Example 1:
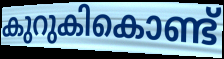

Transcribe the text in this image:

കുറുകികൊണ്ട്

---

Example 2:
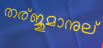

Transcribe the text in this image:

തര്ജുമാനുല്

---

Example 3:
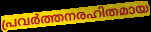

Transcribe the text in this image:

പ്രവർത്തനരഹിതമായ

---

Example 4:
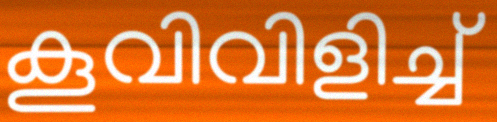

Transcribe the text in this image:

കൂവിവിളിച്ച്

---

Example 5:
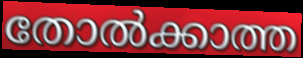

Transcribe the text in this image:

തോൽക്കാത്ത